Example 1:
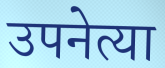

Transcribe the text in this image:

उपनेत्या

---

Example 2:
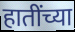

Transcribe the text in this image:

हातींच्या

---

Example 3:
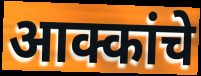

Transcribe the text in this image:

आक्कांचे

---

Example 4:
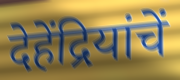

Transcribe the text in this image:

देहेंद्रियांचें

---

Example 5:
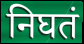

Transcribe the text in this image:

निघतं